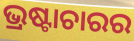
ଭ୍ରଷ୍ଟାଚାରର